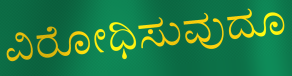
ವಿರೋಧಿಸುವುದೂ